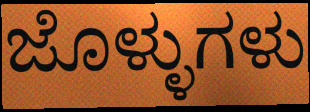
ಜೊಳ್ಳುಗಳು